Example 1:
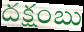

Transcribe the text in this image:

దక్షంబు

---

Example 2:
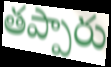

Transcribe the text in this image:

తప్పారు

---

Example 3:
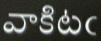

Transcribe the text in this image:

వాకిటఁ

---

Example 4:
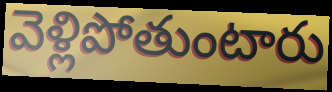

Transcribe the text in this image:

వెళ్లిపోతుంటారు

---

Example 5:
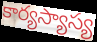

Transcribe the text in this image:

కార్యస్యాస్య